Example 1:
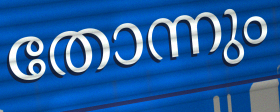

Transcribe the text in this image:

തോന്നും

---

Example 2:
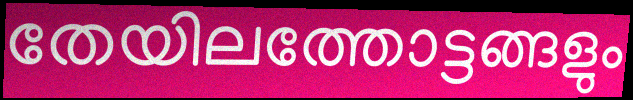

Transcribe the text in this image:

തേയിലത്തോട്ടങ്ങളും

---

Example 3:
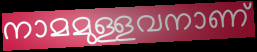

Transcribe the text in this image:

നാമമുള്ളവനാണ്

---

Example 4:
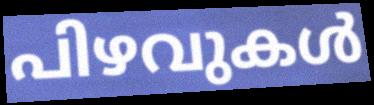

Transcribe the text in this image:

പിഴവുകൾ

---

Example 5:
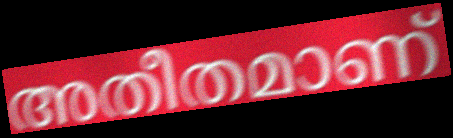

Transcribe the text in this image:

അതീതമാണ്